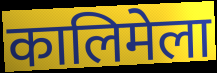
कालिमेला